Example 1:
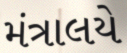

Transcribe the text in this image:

મંત્રાલયે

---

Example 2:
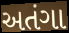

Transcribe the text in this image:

અતંગા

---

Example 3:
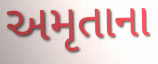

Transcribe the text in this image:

અમૃતાના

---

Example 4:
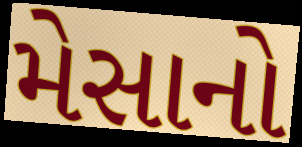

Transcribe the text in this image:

મેસાનો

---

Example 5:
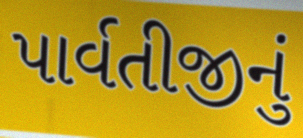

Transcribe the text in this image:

પાર્વતીજીનું